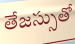
తేజస్సుతో